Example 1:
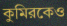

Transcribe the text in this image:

কুমিরকেও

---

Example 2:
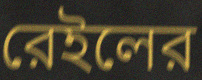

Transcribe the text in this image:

রেইলের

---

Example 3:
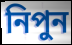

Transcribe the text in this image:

নিপুন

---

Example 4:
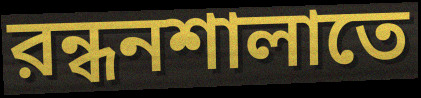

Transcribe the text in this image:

রন্ধনশালাতে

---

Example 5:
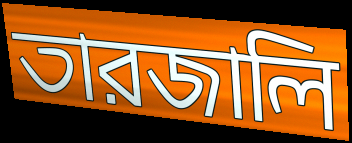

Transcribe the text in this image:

তারজালি